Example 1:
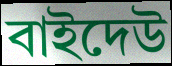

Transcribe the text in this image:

বাইদেউ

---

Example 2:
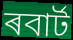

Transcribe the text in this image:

ৰবাৰ্ট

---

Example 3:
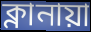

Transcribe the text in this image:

ক্নানায়া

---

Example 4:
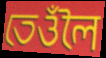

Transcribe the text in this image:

তেওঁলৈ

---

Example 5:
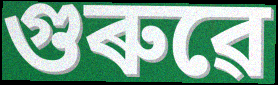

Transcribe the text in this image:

গুৰুৱে